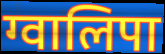
ग्वालिपा